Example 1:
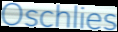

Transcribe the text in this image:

Oschlies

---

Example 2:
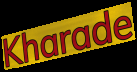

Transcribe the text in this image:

Kharade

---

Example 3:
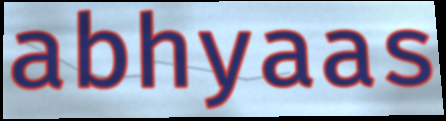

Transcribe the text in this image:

abhyaas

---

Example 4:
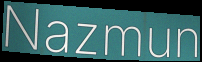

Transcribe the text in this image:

Nazmun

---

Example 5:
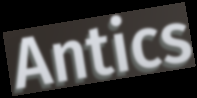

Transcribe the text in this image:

Antics